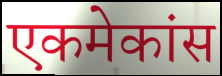
एकमेकांस